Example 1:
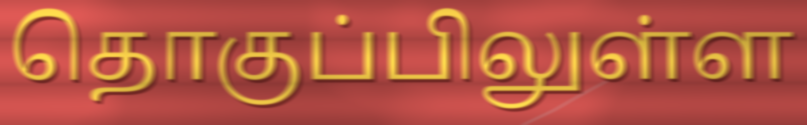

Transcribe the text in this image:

தொகுப்பிலுள்ள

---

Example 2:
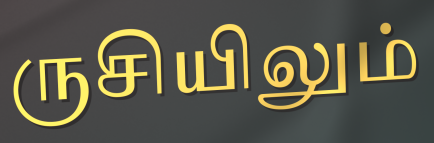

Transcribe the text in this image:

ருசியிலும்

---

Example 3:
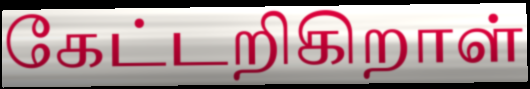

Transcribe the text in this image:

கேட்டறிகிறாள்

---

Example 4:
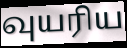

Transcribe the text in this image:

வுயரிய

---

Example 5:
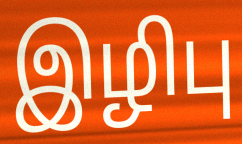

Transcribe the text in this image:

இழிபு